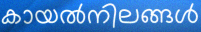
കായൽനിലങ്ങൾ